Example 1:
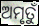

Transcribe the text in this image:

ଅମୃତୁଁ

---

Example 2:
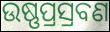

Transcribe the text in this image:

ଉଷ୍ଣପ୍ରସ୍ରବଣ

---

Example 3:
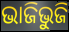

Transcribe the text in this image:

ଭାଜିଭୁଜି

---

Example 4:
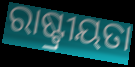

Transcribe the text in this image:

ରାଷ୍ଟ୍ରୀୟତା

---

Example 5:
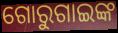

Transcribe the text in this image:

ଗୋରୁଗାଇଙ୍କ